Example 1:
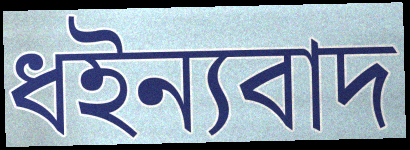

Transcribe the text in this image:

ধইন্যবাদ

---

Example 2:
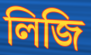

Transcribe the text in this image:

লিজি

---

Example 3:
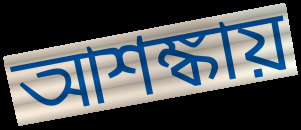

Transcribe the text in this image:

আশঙ্কায়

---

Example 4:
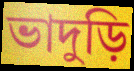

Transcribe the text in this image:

ভাদুড়ি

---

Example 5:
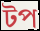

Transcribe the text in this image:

টপ